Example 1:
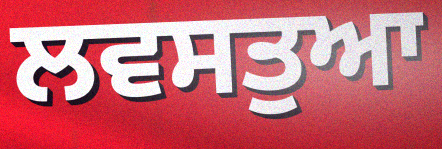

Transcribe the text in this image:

ਲਵਸਤੁਆ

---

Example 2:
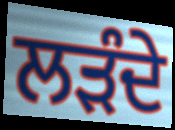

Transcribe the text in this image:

ਲੜੰਦੇ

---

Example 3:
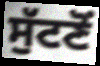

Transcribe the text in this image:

ਸੁੱਟਣੋਂ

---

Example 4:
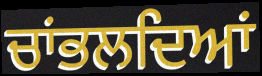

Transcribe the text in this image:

ਚਾਂਭਲਦਿਆਂ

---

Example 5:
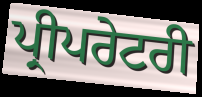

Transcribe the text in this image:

ਪ੍ਰੀਪਰੇਟਰੀ